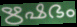
ഋഷഭം